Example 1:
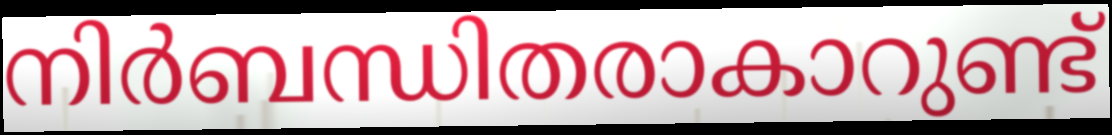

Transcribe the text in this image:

നിർബന്ധിതരാകാറുണ്ട്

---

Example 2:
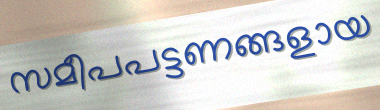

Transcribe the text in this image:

സമീപപട്ടണങ്ങളായ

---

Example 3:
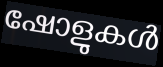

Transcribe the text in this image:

ഷോളുകൾ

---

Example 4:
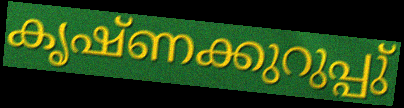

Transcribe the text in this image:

കൃഷ്ണക്കുറുപ്പു്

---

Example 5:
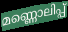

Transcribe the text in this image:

മണ്ണൊലിപ്പ്